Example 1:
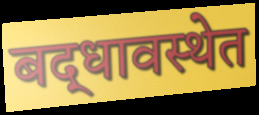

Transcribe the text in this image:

बद्धावस्थेत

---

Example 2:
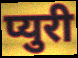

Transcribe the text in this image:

प्युरी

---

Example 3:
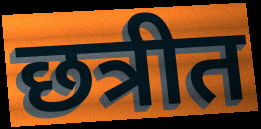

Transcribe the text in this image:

छत्रीत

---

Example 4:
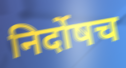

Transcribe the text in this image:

निर्दोषच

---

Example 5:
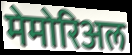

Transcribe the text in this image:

मेमोरिअल